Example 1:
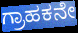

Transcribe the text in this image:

ಗ್ರಾಹಕನೇ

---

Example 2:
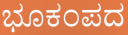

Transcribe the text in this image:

ಭೂಕಂಪದ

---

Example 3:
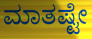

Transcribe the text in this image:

ಮಾತಷ್ಟೇ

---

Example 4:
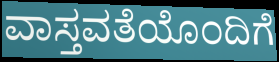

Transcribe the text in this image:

ವಾಸ್ತವತೆಯೊಂದಿಗೆ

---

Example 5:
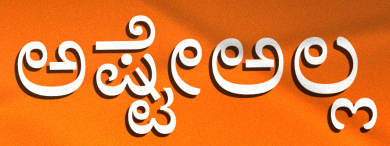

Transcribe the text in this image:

ಅಷ್ಟೇಅಲ್ಲ